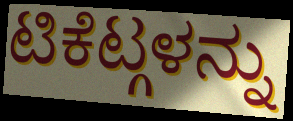
ಟಿಕೆಟ್ಗಳನ್ನು